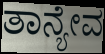
ತಾನ್ಯೇವ